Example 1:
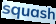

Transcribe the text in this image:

squash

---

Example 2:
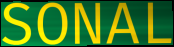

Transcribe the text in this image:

SONAL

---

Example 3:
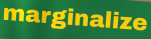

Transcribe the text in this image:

marginalize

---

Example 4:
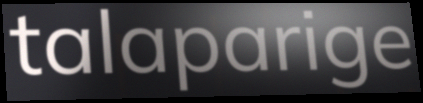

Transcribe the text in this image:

talaparige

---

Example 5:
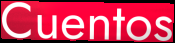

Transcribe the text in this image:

Cuentos